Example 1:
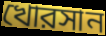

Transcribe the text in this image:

খোরসান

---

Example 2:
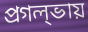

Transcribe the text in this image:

প্রগল্‌ভায়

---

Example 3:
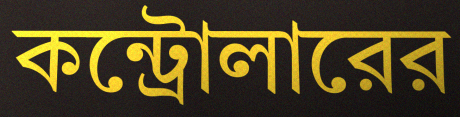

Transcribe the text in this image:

কন্ট্রোলারের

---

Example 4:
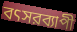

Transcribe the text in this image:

বৎসরব্যাপী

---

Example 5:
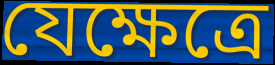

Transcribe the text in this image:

যেক্ষেত্রে